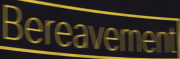
Bereavement